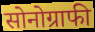
सोनोग्राफी